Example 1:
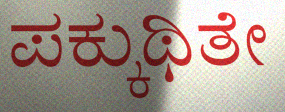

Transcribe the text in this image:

ಪಕ್ಕುಥಿತೇ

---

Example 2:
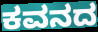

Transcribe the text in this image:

ಕವನದ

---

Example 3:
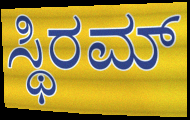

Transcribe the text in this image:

ಸ್ಥಿರಮ್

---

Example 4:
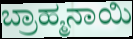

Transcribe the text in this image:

ಬ್ರಾಹ್ಮನಾಯಿ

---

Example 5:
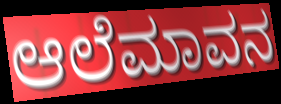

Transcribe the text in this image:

ಆಲೆಮಾವನ